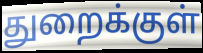
துறைக்குள்